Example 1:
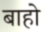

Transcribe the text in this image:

बाहो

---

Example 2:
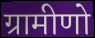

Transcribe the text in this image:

ग्रामीणो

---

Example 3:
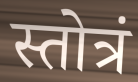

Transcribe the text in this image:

स्तोत्रं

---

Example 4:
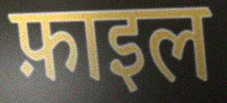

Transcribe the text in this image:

फ़ाइल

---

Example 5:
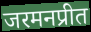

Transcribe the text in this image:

जरमनप्रीत